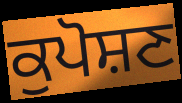
ਕੁਪੋਸ਼ਣ